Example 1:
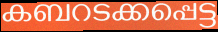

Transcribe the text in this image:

കബറടക്കപ്പെട്ട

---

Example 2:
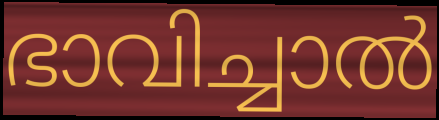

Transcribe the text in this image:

ഭാവിച്ചാൽ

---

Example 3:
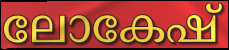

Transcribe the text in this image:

ലോകേഷ്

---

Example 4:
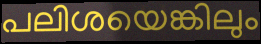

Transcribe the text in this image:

പലിശയെങ്കിലും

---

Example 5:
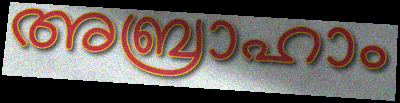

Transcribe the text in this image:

അബ്രാഹാം